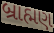
બ્રાહ્મણ